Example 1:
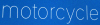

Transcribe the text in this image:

motorcycle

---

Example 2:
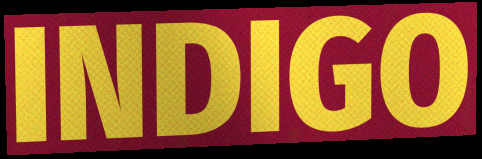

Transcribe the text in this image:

INDIGO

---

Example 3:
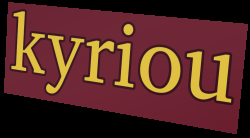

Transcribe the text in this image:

kyriou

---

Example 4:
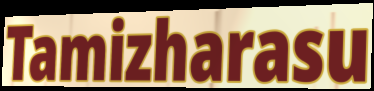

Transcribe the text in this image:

Tamizharasu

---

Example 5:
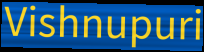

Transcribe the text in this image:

Vishnupuri